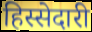
हिस्सेदारी